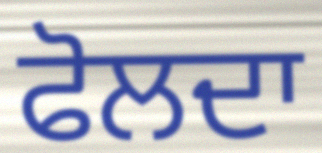
ਫੋਲਦਾ